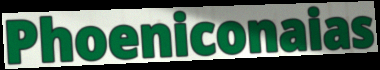
Phoeniconaias